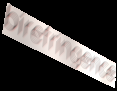
birefringence